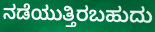
ನಡೆಯುತ್ತಿರಬಹುದು